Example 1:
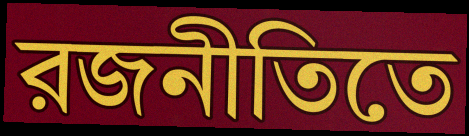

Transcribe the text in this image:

রজনীতিতে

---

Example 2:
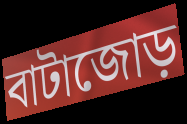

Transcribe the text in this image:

বাটাজোড়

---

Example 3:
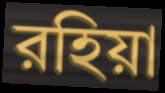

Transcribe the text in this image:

রহিয়া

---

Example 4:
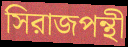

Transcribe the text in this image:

সিরাজপন্থী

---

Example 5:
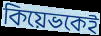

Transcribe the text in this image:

কিয়েভকেই